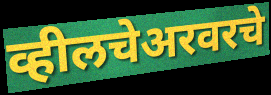
व्हीलचेअरवरचे